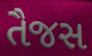
તૈજસ